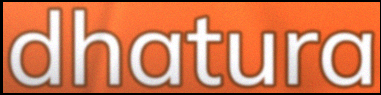
dhatura